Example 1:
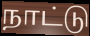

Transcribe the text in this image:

நாட்டு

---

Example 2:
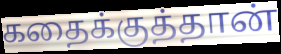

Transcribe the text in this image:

கதைக்குத்தான்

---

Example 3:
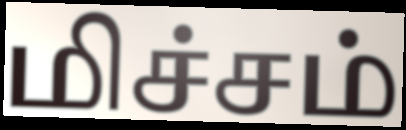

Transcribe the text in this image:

மிச்சம்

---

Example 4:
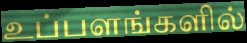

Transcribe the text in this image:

உப்பளங்களில்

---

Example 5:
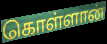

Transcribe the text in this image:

கொள்ளான்